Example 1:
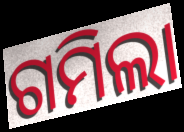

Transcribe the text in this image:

ଗମିଲା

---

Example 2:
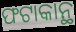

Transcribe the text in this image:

ଫଟାକାନ୍ଥ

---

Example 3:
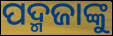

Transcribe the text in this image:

ପଦ୍ମଜାଙ୍କୁ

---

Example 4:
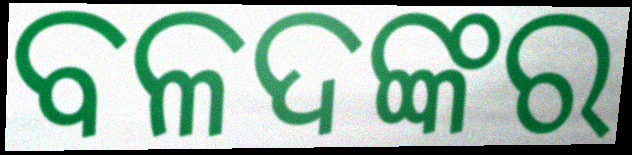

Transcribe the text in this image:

ବଳଦଙ୍କର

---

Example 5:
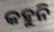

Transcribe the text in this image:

କହୁନି